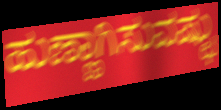
ಹುಣ್ಣಾಗಿಸುವಷ್ಟು